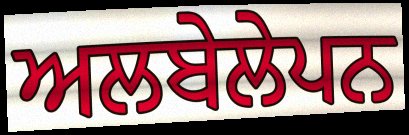
ਅਲਬੇਲੇਪਨ